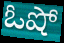
ఓషో